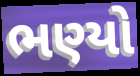
ભણ્યો